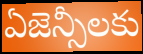
ఏజెన్సీలకు